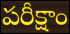
పరీక్షాం